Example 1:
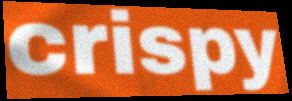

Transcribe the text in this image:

crispy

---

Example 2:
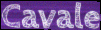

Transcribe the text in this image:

Cavale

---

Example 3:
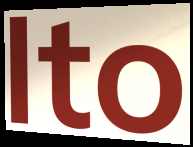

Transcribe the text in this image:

Ito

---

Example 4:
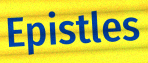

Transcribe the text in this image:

Epistles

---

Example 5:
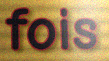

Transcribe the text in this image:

fois